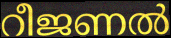
റീജണൽ